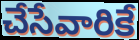
చేసేవారికే